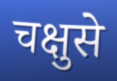
चक्षुसे